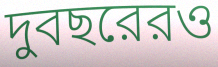
দুবছরেরও